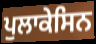
ਪੁਲਾਕੇਸਿਨ